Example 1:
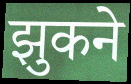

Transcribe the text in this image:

झुकने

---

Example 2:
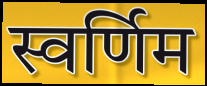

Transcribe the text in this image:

स्वर्णिम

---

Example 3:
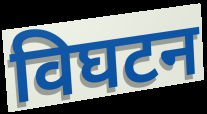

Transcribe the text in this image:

विघटन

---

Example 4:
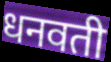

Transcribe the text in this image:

धनवती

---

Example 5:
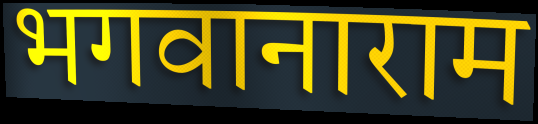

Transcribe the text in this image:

भगवानाराम